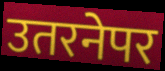
उतरनेपर